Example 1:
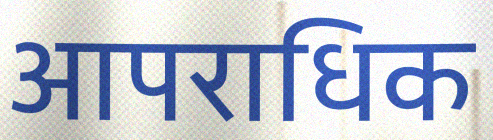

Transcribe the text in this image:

आपराधिक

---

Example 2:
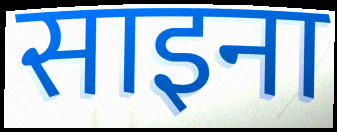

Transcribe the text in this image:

साइना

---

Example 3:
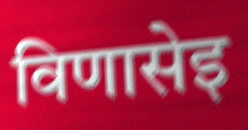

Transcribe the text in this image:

विणासेइ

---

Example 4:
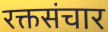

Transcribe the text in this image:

रक्तसंचार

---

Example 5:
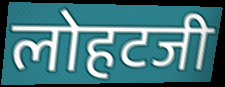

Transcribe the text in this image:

लोहटजी